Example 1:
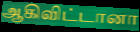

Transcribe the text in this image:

ஆகிவிட்டானா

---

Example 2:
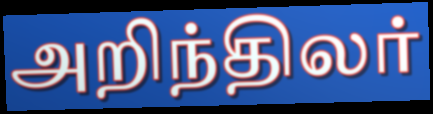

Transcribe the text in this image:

அறிந்திலர்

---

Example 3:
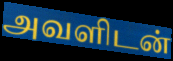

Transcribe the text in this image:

அவளிடன்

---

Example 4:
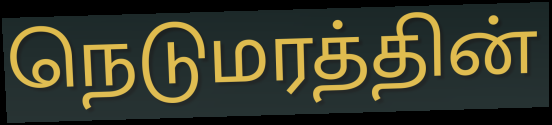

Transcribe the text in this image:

நெடுமரத்தின்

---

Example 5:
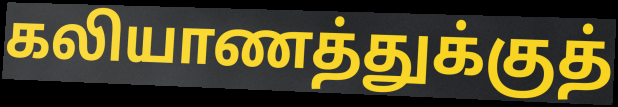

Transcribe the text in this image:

கலியாணத்துக்குத்